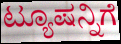
ಟ್ಯೂಷನ್ನಿಗೆ